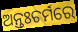
ଅନ୍ତଃଚର୍ମରେ